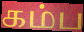
கம்ப